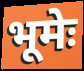
भूमेः